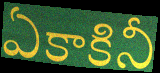
ఏకాకినీ